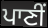
ਪਾਣੀਂ